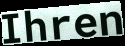
Ihren